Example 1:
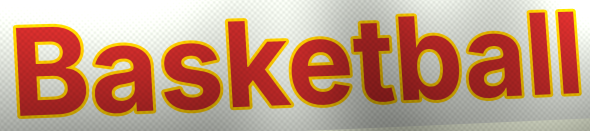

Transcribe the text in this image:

Basketball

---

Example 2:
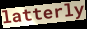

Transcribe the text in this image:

latterly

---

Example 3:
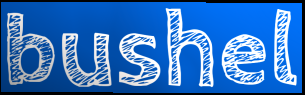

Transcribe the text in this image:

bushel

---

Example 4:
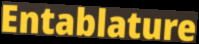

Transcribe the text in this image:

Entablature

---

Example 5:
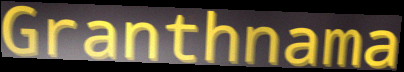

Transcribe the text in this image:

Granthnama